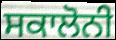
ਸਕਾਲੋਨੀ